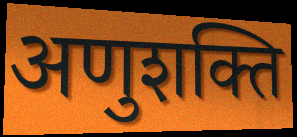
अणुशक्ति